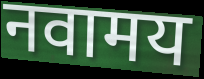
नवामय